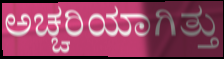
ಅಚ್ಚರಿಯಾಗಿತ್ತು